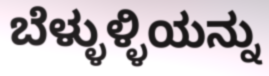
ಬೆಳ್ಳುಳ್ಳಿಯನ್ನು